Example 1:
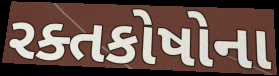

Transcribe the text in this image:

રક્તકોષોના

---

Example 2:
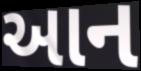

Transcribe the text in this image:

આન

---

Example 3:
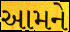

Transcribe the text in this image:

આમને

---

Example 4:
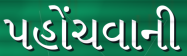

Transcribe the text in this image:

પહોંચવાની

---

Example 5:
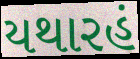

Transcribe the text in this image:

યથારહં